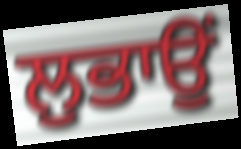
ਲੁਭਾਉਂ